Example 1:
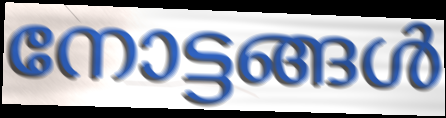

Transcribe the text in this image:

നോട്ടങ്ങൾ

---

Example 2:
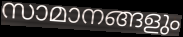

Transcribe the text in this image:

സാമാനങ്ങളും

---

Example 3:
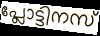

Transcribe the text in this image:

പ്ലോട്ടിനസ്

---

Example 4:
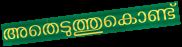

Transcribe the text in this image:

അതെടുത്തുകൊണ്ട്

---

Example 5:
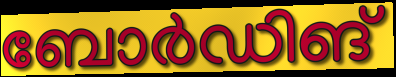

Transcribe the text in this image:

ബോർഡിങ്